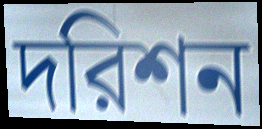
দরিশন